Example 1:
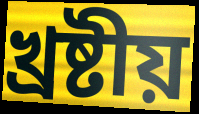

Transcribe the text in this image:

খ্রষ্টীয়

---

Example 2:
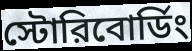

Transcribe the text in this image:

স্টোরিবোর্ডিং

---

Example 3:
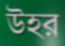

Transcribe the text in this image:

উহর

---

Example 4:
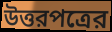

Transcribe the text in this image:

উত্তরপত্রের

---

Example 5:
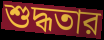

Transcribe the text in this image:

শুদ্ধতার